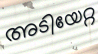
അടിയേറ്റ